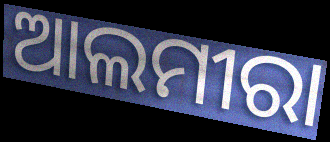
ଆଲମୀରା